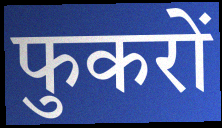
फुकरों